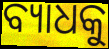
ବ୍ୟାଧକୁ